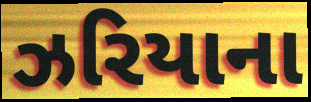
ઝરિયાના